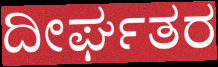
ದೀರ್ಘತರ